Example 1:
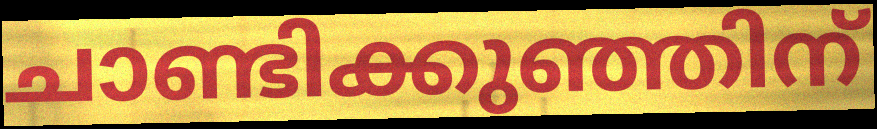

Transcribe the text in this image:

ചാണ്ടിക്കുഞ്ഞിന്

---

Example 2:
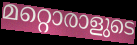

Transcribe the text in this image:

മറ്റൊരാളുടെ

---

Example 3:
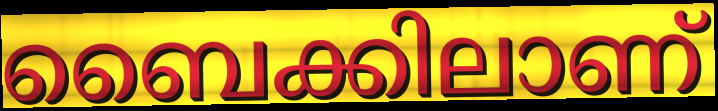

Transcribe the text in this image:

ബൈക്കിലാണ്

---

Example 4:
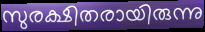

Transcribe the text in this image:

സുരക്ഷിതരായിരുന്നു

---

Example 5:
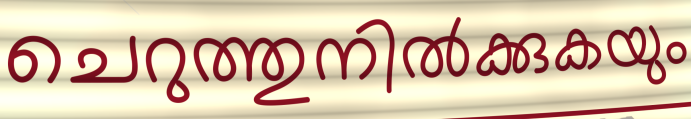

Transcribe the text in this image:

ചെറുത്തുനിൽക്കുകയും